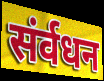
संर्वधन